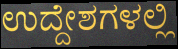
ಉದ್ದೇಶಗಳಲ್ಲಿ